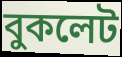
বুকলেট